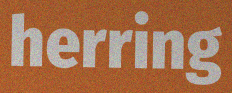
herring